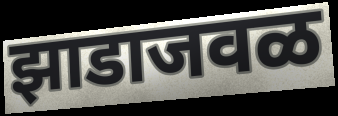
झाडाजवळ